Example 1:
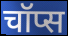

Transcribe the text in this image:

चॉप्स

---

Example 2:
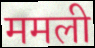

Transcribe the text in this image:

ममली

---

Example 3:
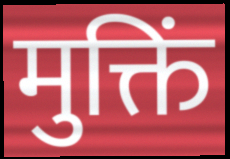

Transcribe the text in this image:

मुक्तिं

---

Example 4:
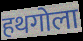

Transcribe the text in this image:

हथगोला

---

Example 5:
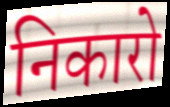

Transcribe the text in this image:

निकारो